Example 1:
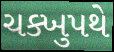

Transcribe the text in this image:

ચક્ખુપથે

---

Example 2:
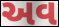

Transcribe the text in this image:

અવ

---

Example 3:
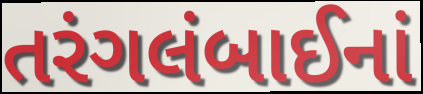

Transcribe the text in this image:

તરંગલંબાઈનાં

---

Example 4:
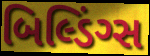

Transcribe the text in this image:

બિલ્ડિંગ્સ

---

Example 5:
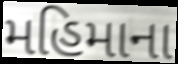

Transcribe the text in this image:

મહિમાના